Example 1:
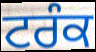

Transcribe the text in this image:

ਟਰੰਕ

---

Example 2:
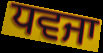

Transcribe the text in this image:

ਧਵਜਾ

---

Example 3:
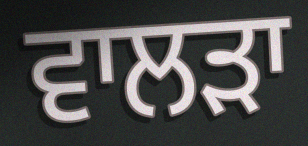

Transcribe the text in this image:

ਵਾਲੜਾ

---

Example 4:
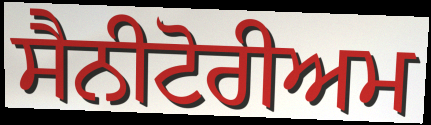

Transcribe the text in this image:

ਸੈਨੀਟੋਰੀਅਮ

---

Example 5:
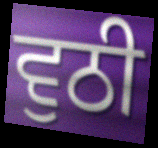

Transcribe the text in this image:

ਵੁਠੀ